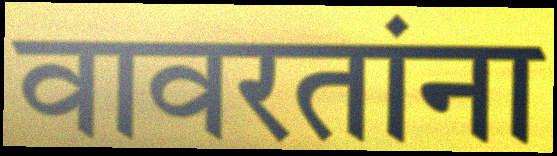
वावरतांना